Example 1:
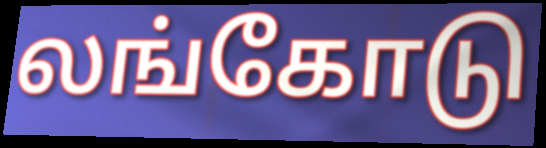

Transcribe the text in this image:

லங்கோடு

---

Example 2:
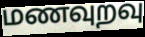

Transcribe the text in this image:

மணவுறவு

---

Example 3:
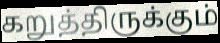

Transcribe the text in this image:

கறுத்திருக்கும்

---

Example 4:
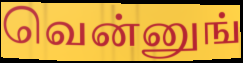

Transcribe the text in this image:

வென்னுங்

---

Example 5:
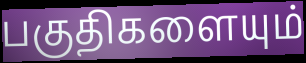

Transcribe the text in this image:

பகுதிகளையும்